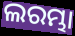
ଲରମ୍ଭା